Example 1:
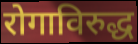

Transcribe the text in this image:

रोगाविरुद्ध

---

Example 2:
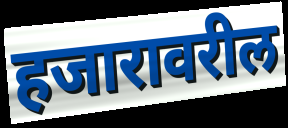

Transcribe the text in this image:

हजारावरील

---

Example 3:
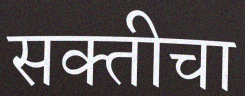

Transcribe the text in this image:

सक्‍तीचा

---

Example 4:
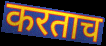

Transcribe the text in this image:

करताच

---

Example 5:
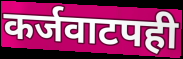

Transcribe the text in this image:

कर्जवाटपही